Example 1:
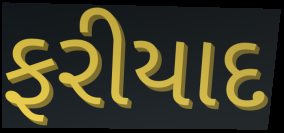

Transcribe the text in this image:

ફરીયાદ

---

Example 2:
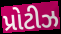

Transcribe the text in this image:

પ્રોટીઝ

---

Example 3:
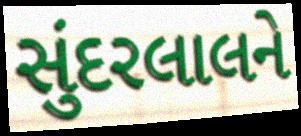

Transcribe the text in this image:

સુંદરલાલને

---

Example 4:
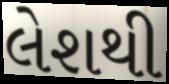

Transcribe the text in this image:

લેશથી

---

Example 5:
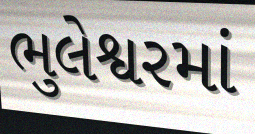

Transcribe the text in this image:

ભુલેશ્વરમાં